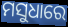
ମସୁଧାରେ